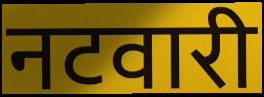
नटवारी